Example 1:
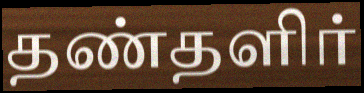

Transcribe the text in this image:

தண்தளிர்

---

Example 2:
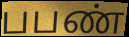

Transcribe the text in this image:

பபண்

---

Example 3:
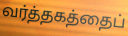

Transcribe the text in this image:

வர்த்தகத்தைப்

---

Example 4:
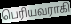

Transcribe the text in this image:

பெரியவராகி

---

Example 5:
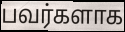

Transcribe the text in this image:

பவர்களாக